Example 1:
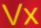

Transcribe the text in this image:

Vx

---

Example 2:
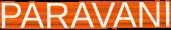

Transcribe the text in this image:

PARAVANI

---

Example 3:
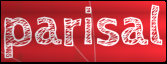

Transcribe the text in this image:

parisal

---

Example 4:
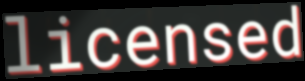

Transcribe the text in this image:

licensed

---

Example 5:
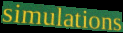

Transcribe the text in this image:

simulations